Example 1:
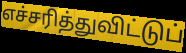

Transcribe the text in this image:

எச்சரித்துவிட்டுப்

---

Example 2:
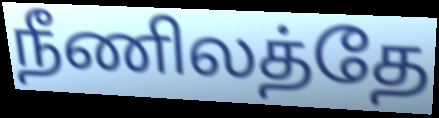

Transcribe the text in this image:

நீணிலத்தே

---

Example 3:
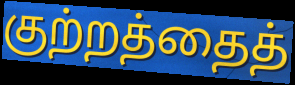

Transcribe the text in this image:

குற்றத்தைத்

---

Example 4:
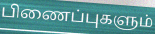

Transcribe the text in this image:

பிணைப்புகளும்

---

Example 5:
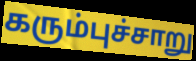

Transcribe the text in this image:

கரும்புச்சாறு